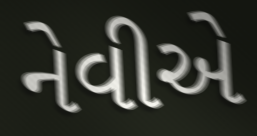
નેવીએ